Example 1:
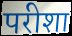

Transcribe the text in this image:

परीशा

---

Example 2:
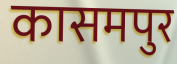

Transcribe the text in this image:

कासमपुर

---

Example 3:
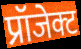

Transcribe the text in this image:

प्रॉजेक्‍ट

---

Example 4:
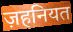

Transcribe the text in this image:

ज़हनियत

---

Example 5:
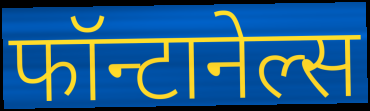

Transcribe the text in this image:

फॉन्टानेल्स